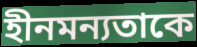
হীনমন্যতাকে